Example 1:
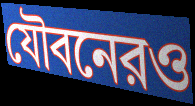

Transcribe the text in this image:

যৌবনেরও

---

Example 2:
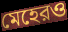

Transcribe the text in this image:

মেহেরও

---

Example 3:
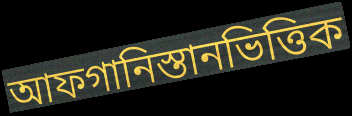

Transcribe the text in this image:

আফগানিস্তানভিত্তিক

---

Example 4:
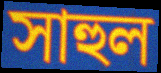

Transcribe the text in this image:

সাহুল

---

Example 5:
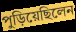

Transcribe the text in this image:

পুড়িয়েছিলেন